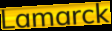
Lamarck